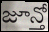
జూన్తో